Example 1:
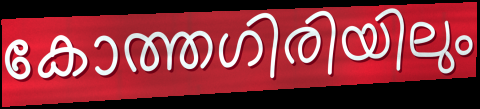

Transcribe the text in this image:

കോത്തഗിരിയിലും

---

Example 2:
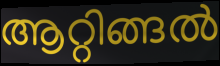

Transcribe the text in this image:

ആറ്റിങ്ങൽ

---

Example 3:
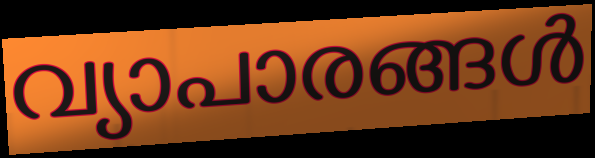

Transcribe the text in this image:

വ്യാപാരങ്ങൾ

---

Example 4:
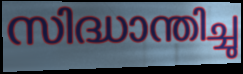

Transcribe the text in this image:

സിദ്ധാന്തിച്ചു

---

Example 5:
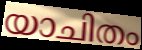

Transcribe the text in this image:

യാചിതം